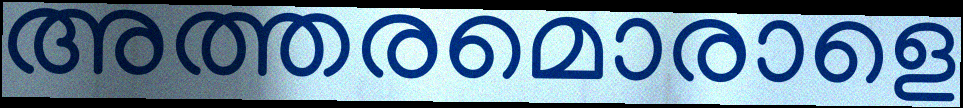
അത്തരമൊരാളെ